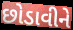
છોડાવીને